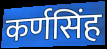
कर्णसिंह